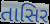
તાસિર